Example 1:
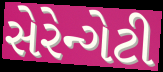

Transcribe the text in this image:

સેરેન્ગેટી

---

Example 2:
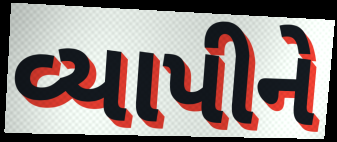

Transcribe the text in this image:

વ્યાપીને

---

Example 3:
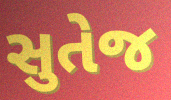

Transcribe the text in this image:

સુતેજ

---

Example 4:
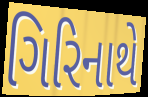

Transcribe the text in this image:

ગિરિનાથે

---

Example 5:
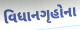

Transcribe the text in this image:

વિધાનગૃહોના